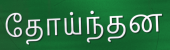
தோய்ந்தன